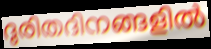
ദുരിതദിനങ്ങളിൽ